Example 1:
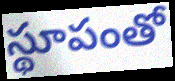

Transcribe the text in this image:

స్థూపంతో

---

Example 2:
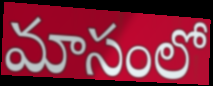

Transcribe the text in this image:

మాసంలో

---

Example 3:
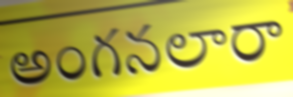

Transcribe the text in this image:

అంగనలారా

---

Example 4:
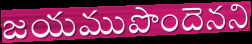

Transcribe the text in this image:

జయముపొందెనని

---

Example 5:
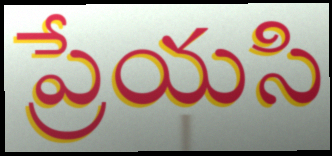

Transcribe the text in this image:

ప్రేయసి